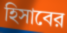
হিসাবের